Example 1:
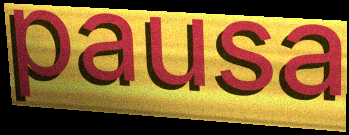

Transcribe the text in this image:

pausa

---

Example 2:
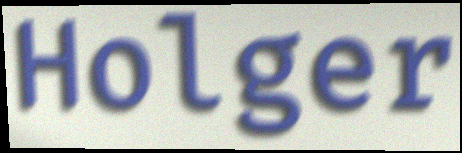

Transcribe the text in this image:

Holger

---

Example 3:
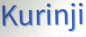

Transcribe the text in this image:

Kurinji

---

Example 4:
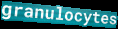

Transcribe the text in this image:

granulocytes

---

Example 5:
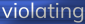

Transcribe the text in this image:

violating